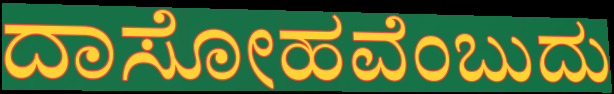
ದಾಸೋಹವೆಂಬುದು